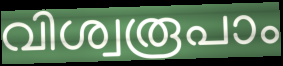
വിശ്വരൂപാം